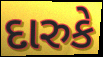
દારુકે